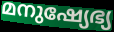
മനുഷ്യേഭ്യ